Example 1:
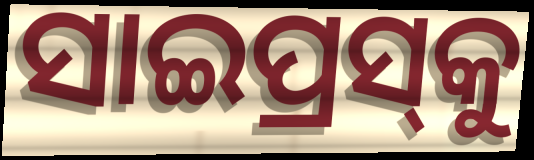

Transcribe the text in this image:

ସାଇପ୍ରସ୍‌କୁ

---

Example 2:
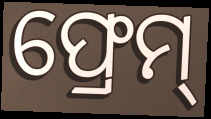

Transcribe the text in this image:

ଫ୍ରେମ୍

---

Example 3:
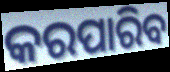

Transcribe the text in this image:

କରପାରିବ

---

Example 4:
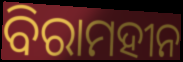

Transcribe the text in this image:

ବିରାମହୀନ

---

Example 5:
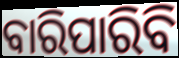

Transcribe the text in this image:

ବାରିପାରିବି